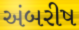
અંબરીષ